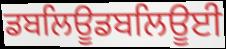
ਡਬਲਿਊਡਬਲਿਊਈ